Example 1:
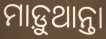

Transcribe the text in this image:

ମାଡ଼ୁଥାନ୍ତା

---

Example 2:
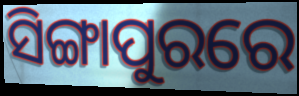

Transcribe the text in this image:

ସିଙ୍ଗାପୁରରେ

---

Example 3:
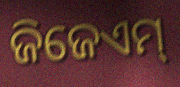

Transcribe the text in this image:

ଜିଜେଏମ୍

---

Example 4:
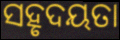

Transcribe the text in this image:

ସହୃଦୟତା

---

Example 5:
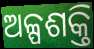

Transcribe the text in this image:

ଅଳ୍ପଶକ୍ତି